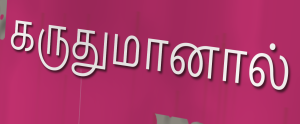
கருதுமானால்